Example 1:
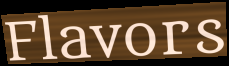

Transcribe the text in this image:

Flavors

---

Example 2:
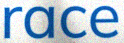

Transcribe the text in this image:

race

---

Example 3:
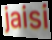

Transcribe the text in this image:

jaisi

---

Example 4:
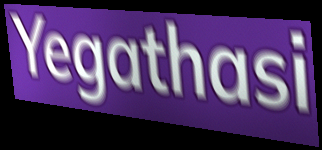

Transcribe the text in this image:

Yegathasi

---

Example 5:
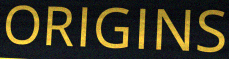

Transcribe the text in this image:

ORIGINS